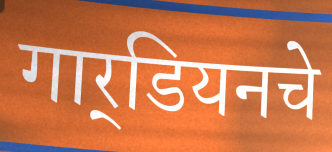
गार्डियनचे